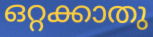
ഒറ്റക്കാതു